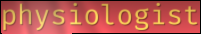
physiologist